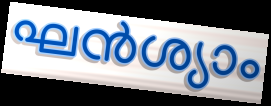
ഘൻശ്യാം